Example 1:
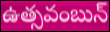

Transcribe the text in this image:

ఉత్సవంబున్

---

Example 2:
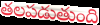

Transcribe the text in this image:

తలపడుతుంది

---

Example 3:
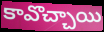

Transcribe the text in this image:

కావొచ్చాయి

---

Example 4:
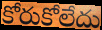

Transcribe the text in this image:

కోరుకోలేదు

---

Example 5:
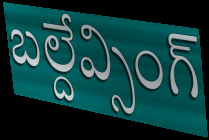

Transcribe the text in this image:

బల్దేవ్సింగ్